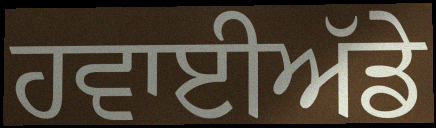
ਹਵਾਈਅੱਡੇ